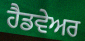
ਹੈਡਵੇਅਰ